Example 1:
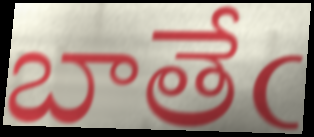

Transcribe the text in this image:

బాతేఁ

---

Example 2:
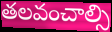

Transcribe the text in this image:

తలవంచాల్సి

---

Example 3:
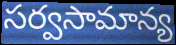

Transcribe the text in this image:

సర్వసామాన్య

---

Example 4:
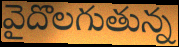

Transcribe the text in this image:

వైదొలగుతున్న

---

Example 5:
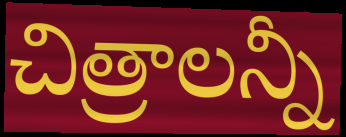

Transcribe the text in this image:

చిత్రాలన్నీ